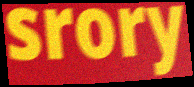
srory